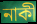
নাকী